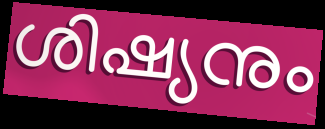
ശിഷ്യനും